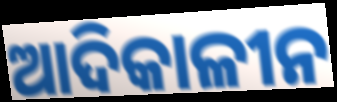
ଆଦିକାଳୀନ